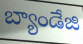
బ్యాండేజి